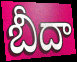
బీదా